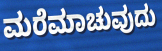
ಮರೆಮಾಚುವುದು